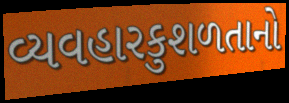
વ્યવહારકુશળતાનો